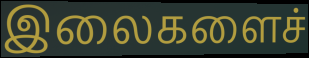
இலைகளைச்